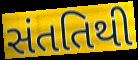
સંતતિથી